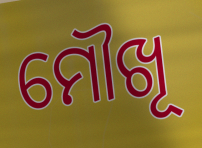
ମୌଖୂ